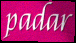
padar